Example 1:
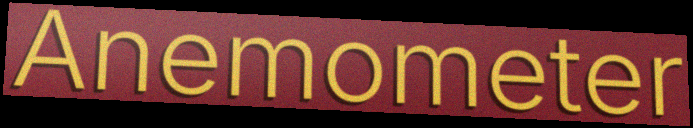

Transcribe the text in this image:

Anemometer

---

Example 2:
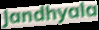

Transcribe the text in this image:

Jandhyala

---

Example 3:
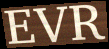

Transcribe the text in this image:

EVR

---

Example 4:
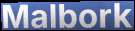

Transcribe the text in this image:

Malbork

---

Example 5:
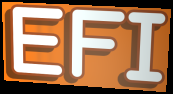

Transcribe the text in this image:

EFI